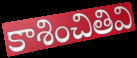
కాశించితివి